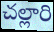
చల్లారి